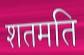
शतमति